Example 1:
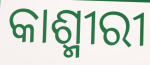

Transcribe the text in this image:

କାଶ୍ମୀରୀ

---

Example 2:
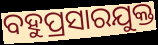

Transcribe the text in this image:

ବହୁପ୍ରସାରଯୁକ୍ତ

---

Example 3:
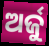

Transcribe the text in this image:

ଅର୍ଜୁ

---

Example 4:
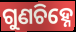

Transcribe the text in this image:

ଗୁଣଚିହ୍ନେ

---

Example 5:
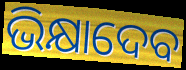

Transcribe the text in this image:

ଭିକ୍ଷାଦେବ